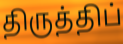
திருத்திப்